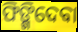
ଫିଙ୍ଗିଦେବା